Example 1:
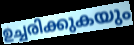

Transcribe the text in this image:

ഉച്ചരിക്കുകയും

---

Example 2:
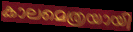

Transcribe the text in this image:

കാലമെത്രയായി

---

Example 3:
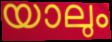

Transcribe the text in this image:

യാലും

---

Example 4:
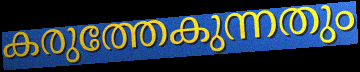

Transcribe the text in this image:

കരുത്തേകുന്നതും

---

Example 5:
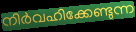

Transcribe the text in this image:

നിർവഹിക്കേണ്ടുന്ന